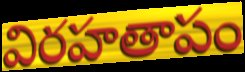
విరహతాపం